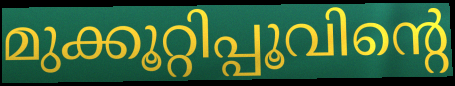
മുക്കൂറ്റിപ്പൂവിന്റെ